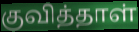
குவித்தாள்